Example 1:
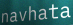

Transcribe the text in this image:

navhata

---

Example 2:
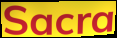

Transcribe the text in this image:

Sacra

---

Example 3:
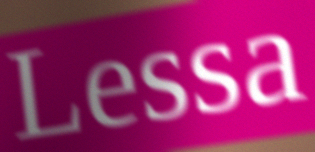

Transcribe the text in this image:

Lessa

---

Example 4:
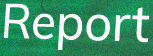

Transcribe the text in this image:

Report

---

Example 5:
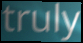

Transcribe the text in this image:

truly